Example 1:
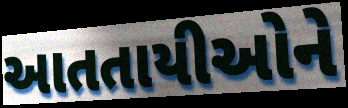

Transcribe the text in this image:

આતતાયીઓને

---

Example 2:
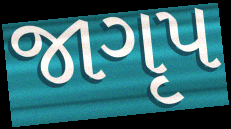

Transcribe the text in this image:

જાગૃપ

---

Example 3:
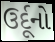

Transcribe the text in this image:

ઉર્દૂનો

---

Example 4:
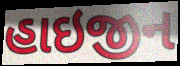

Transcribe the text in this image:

હાઇજીન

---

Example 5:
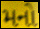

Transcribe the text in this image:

મનો